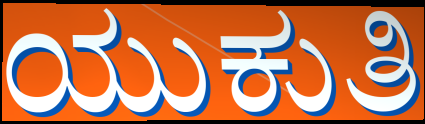
ಯುಕುತಿ